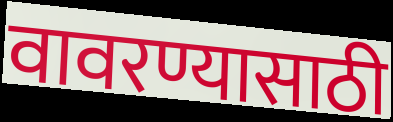
वावरण्यासाठी